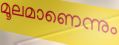
മൂലമാണെന്നും